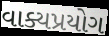
વાક્યપ્રયોગ